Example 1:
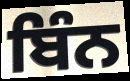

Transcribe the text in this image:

ਬਿੰਨ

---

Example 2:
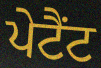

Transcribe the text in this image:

ਪੇਟੈਂਟ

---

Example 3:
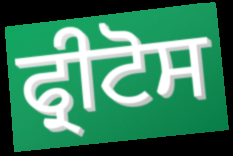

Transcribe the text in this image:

ਫ੍ਰੀਟੋਸ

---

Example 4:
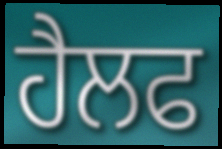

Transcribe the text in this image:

ਹੈਲਫ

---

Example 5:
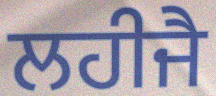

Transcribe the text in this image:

ਲਹੀਜੈ